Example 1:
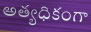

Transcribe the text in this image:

అత్యధికంగా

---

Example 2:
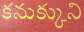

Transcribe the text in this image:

కనుక్కుని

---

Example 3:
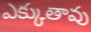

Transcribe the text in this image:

ఎక్కుతావు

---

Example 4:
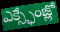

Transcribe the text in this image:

ఎక్స్ఛేంజ్లో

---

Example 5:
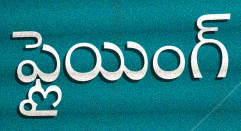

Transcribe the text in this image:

ఫ్లైయింగ్